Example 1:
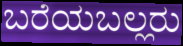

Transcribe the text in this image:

ಬರೆಯಬಲ್ಲರು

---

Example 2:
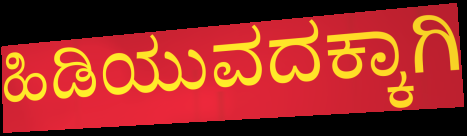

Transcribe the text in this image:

ಹಿಡಿಯುವದಕ್ಕಾಗಿ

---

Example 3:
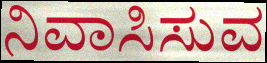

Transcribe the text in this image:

ನಿವಾಸಿಸುವ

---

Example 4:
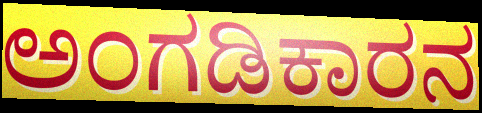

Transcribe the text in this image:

ಅಂಗಡಿಕಾರನ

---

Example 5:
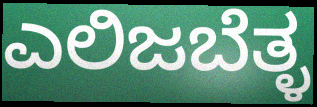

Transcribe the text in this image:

ಎಲಿಜಬೆತ್ಳ